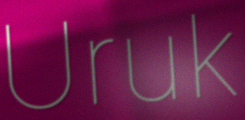
Uruk